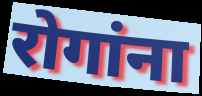
रोगांना